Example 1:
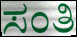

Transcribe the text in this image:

ಸಂತಿ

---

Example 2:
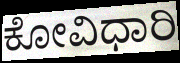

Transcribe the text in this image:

ಕೋವಿಧಾರಿ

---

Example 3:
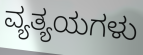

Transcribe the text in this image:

ವ್ಯತ್ಯಯಗಳು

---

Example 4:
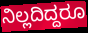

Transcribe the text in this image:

ನಿಲ್ಲದಿದ್ದರೂ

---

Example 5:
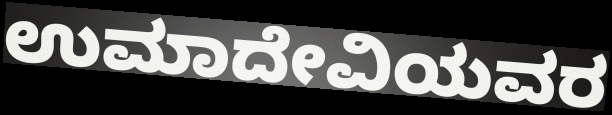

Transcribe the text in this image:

ಉಮಾದೇವಿಯವರ